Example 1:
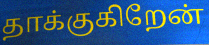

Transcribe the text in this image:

தாக்குகிறேன்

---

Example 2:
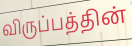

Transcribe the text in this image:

விருப்பத்தின்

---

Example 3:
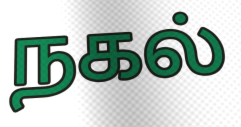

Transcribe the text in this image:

நகல்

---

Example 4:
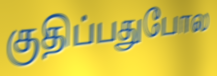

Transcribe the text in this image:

குதிப்பதுபோல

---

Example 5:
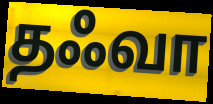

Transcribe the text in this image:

தஃவா